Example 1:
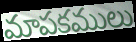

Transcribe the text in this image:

మాపకములు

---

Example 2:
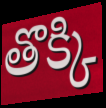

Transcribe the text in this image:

తొక్కి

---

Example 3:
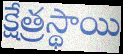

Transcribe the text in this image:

క్షేత్రస్థాయి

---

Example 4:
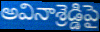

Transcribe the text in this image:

అవినాశ్రెడ్డిపై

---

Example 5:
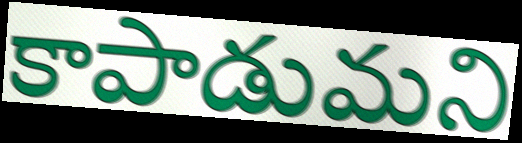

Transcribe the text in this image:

కాపాడుమని